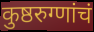
कुष्ठरुग्णांचं